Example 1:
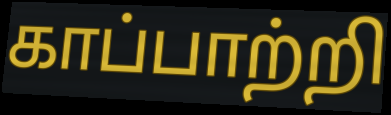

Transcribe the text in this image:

காப்பாற்றி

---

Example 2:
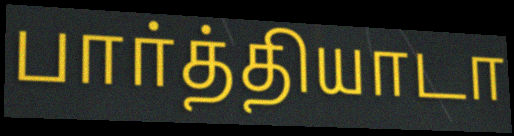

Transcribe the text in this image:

பார்த்தியாடா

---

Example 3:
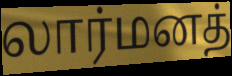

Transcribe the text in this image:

லார்மனத்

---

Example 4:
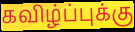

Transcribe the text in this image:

கவிழ்ப்புக்கு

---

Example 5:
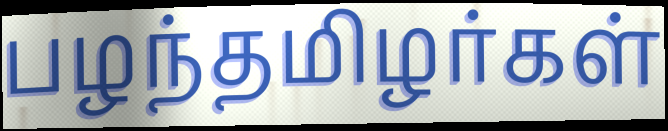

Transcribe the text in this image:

பழந்தமிழர்கள்